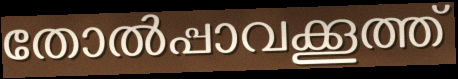
തോൽപ്പാവക്കൂത്ത്